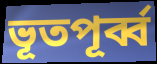
ভূতপূর্ব্ব